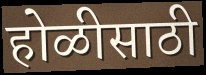
होळीसाठी